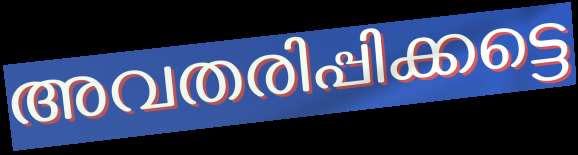
അവതരിപ്പിക്കട്ടെ